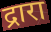
द्रारा